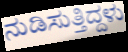
ನುಡಿಸುತ್ತಿದ್ದಳು